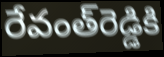
రేవంత్‌రెడ్డికి